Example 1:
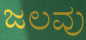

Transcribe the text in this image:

ಜಲವು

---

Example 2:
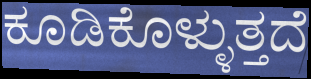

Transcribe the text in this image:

ಕೂಡಿಕೊಳ್ಳುತ್ತದೆ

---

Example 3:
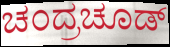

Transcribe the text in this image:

ಚಂದ್ರಚೂಡ್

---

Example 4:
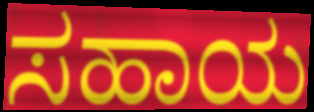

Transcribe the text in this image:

ಸಹಾಯ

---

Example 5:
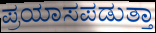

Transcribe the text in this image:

ಪ್ರಯಾಸಪಡುತ್ತಾ